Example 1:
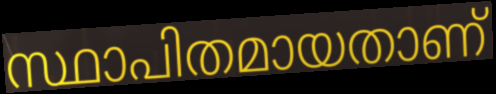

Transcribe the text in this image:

സ്ഥാപിതമായതാണ്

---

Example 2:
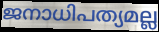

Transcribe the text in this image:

ജനാധിപത്യമല്ല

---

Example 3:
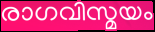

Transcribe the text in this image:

രാഗവിസ്മയം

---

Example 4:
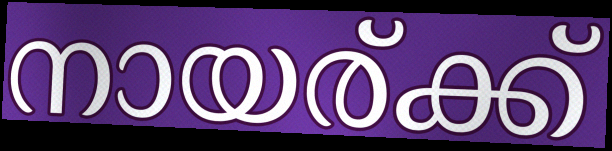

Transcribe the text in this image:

നായര്ക്ക്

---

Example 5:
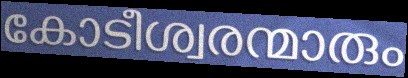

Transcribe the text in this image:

കോടീശ്വരന്മാരും